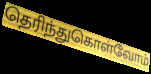
தெரிந்துகொள்வோம்